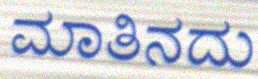
ಮಾತಿನದು